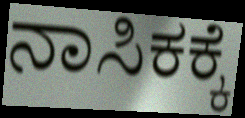
ನಾಸಿಕಕ್ಕೆ